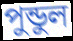
পুন্ডুল